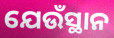
ଯେଉଁସ୍ଥାନ